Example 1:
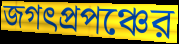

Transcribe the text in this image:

জগৎপ্রপঞ্চের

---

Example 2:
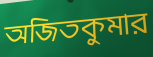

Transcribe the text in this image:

অজিতকুমার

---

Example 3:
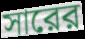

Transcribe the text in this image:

সারের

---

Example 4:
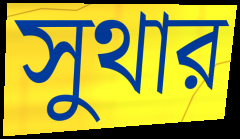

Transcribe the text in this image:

সুথার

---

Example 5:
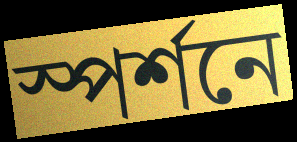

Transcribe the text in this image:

স্পর্শনে